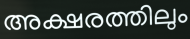
അക്ഷരത്തിലും